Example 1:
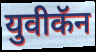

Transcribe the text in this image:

युवीकॅन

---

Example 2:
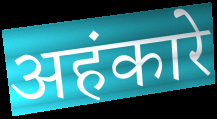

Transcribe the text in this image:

अहंकारे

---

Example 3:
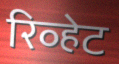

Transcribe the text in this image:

रिव्हेट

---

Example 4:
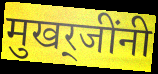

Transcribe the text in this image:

मुखर्जींनी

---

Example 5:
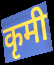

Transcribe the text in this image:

कृमी